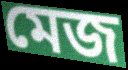
মেজ